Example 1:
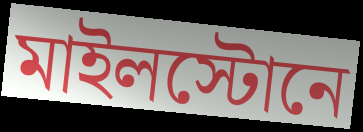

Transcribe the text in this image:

মাইলস্টোনে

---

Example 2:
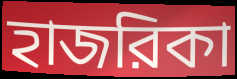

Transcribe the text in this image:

হাজরিকা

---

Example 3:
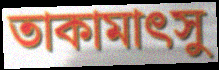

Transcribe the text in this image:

তাকামাৎসু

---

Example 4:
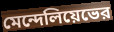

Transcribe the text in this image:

মেন্দেলিয়েভের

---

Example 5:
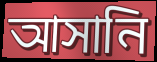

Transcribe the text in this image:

আসানি